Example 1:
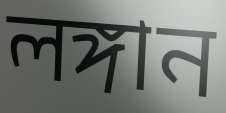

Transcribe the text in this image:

লঙ্গান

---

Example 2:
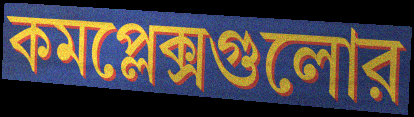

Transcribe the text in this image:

কমপ্লেক্সগুলোর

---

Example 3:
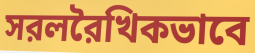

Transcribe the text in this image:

সরলরৈখিকভাবে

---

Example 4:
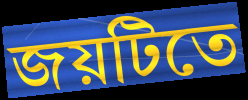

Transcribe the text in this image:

জয়টিতে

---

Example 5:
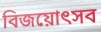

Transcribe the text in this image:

বিজয়োৎসব